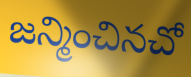
జన్మించినచో